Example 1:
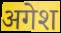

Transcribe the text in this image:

अगेश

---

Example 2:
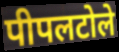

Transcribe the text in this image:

पीपलटोले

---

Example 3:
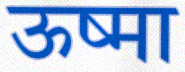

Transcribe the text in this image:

ऊष्‍मा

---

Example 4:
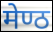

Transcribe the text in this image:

मेण्ठ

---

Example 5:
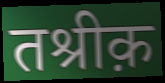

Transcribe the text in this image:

तश्रीक़